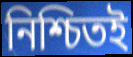
নিশ্চিতই